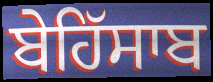
ਬੇਹਿੱਸਾਬ